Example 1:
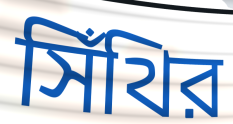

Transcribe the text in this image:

সিঁথির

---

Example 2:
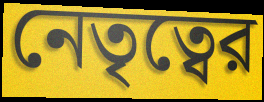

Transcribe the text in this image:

নেতৃত্বের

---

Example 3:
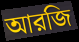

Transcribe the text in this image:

আরজি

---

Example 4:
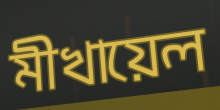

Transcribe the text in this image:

মীখায়েল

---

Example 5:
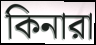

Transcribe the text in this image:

কিনারা